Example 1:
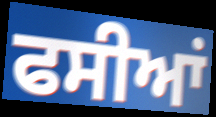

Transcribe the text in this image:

ਫਸੀਆਂ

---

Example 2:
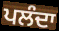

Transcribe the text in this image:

ਪਲੰਦਾ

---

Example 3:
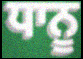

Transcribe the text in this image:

ਧਾਨੂ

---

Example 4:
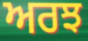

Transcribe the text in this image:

ਅਰਝ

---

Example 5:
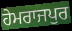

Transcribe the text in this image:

ਹੇਮਰਾਜਪੁਰ